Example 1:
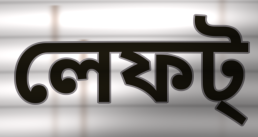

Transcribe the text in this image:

লেফট্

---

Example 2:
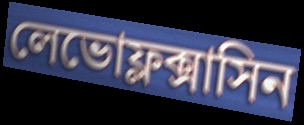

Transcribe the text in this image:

লেভোফ্লক্সাসিন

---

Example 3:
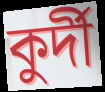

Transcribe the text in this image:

কুর্দী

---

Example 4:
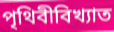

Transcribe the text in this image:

পৃথিবীবিখ্যাত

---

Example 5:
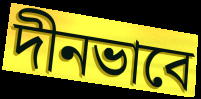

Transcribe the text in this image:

দীনভাবে